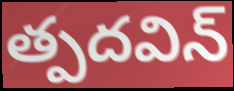
త్పదవిన్